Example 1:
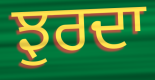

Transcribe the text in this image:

ਝੁਰਦਾ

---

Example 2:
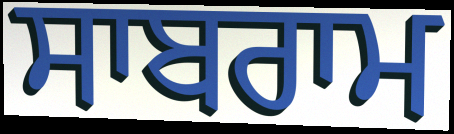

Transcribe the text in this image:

ਸਾਬਰਾਮ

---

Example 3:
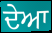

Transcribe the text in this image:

ਦੇਆ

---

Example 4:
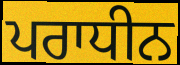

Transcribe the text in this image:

ਪਰਾਧੀਨ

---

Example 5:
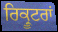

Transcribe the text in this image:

ਰਿਕ੍ਰੂਟਰਾਂ